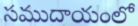
సముదాయంలో